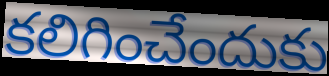
కలిగించేందుకు